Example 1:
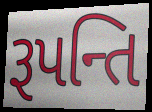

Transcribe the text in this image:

રૂપન્તિ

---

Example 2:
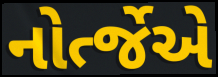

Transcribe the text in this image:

નોર્ત્જેએ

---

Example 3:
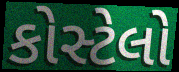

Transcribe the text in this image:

કોસ્ટેલો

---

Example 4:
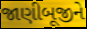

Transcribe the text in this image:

જાણીબૂજીને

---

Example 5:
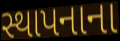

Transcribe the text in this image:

સ્થાપનાના